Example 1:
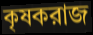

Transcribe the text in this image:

কৃষকরাজ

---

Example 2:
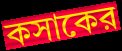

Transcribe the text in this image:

কসাকের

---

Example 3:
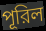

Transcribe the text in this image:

পূরিল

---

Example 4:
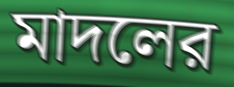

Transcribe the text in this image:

মাদলের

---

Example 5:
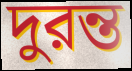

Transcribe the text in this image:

দুরন্ত